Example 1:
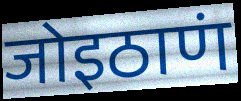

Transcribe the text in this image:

जोइठाणं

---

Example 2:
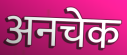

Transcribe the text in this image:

अनचेक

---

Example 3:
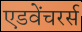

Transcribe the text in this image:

एडवेंचरर्स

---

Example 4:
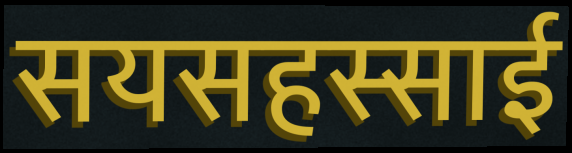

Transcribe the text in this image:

सयसहस्साई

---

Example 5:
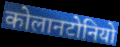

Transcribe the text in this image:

कोलानटोनियो